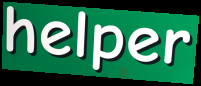
helper